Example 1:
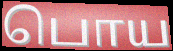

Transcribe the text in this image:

பொய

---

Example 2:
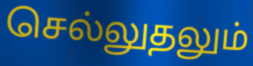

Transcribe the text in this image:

செல்லுதலும்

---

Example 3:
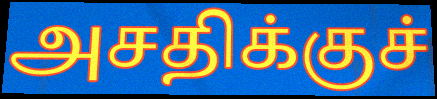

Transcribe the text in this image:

அசதிக்குச்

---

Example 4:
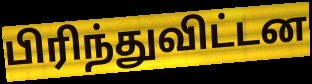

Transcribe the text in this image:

பிரிந்துவிட்டன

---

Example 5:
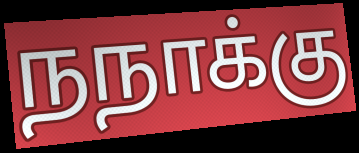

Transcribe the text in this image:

நநாக்கு